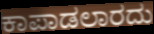
ಕಾಪಾಡಲಾರದು